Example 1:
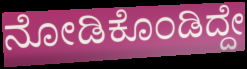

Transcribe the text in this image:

ನೋಡಿಕೊಂಡಿದ್ದೇ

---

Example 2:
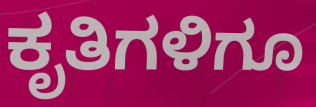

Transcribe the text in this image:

ಕೃತಿಗಳಿಗೂ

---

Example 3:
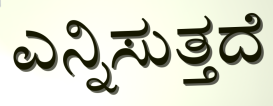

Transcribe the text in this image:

ಎನ್ನಿಸುತ್ತದೆ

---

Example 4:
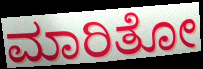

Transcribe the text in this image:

ಮಾರಿತೋ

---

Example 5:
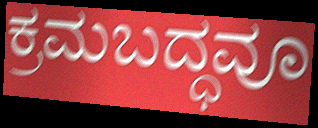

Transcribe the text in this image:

ಕ್ರಮಬದ್ಧವೂ